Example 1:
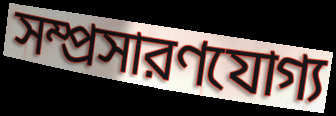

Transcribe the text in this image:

সম্প্রসারণযোগ্য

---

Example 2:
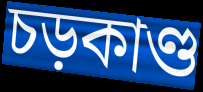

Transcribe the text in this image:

চড়কাণ্ড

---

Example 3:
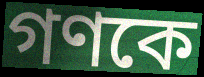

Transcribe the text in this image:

গণকে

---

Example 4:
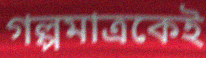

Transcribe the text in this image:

গল্পমাত্রকেই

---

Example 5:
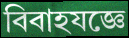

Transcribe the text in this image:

বিবাহযজ্ঞে